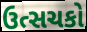
ઉત્સચકો